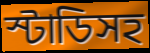
স্টাডিসহ